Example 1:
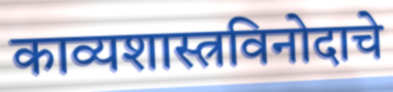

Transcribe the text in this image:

काव्यशास्त्रविनोदाचे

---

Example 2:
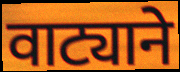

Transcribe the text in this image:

वाट्याने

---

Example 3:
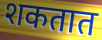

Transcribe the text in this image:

शकतात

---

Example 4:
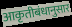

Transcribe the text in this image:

आकृतीबंधानुसार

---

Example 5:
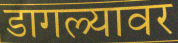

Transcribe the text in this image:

डागल्यावर